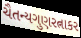
ચૈતન્યગુણરત્નાકર